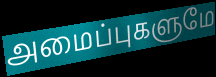
அமைப்புகளுமே